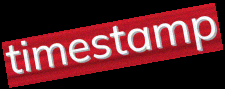
timestamp